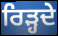
ਰਿੜ੍ਹਦੇ